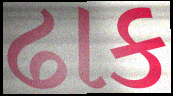
ઢાક